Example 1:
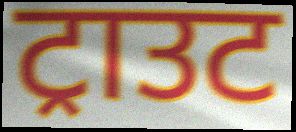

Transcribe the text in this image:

ट्राउट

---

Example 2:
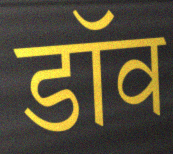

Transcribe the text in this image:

डॉव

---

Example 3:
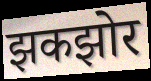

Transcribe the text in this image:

झकझोर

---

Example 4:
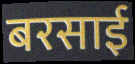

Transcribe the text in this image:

बरसाई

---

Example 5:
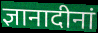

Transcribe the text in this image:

ज्ञानादीनां